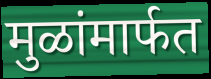
मुळांमार्फत